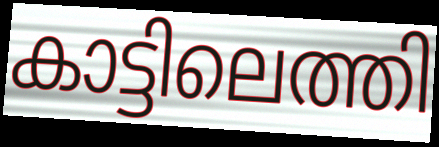
കാട്ടിലെത്തി